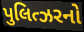
પુલિત્ઝરનો